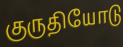
குருதியோடு